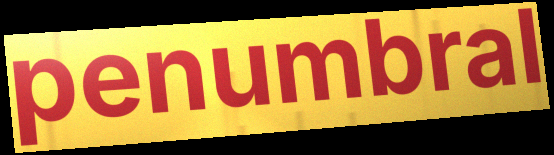
penumbral